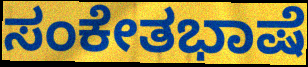
ಸಂಕೇತಭಾಷೆ